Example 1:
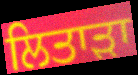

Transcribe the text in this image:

ਲਿਤਾੜਾ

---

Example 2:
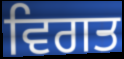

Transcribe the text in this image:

ਵਿਗਤ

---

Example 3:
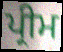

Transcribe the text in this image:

ਪ੍ਰੀਮ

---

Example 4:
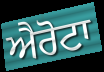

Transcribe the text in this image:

ਐਰੋਟਾ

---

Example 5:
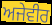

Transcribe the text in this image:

ਅਜੇਵੀਰ